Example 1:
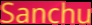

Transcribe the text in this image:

Sanchu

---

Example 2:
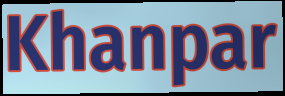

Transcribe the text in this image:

Khanpar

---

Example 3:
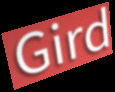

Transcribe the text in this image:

Gird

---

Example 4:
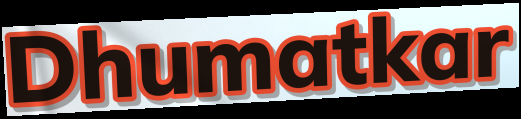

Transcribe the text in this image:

Dhumatkar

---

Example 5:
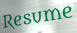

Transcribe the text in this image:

Resume